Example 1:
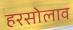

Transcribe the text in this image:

हरसोलाव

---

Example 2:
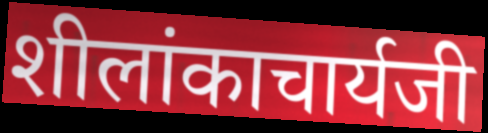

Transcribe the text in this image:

शीलांकाचार्यजी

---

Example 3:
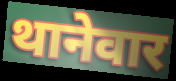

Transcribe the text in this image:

थानेवार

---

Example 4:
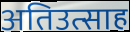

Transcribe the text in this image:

अतिउत्साह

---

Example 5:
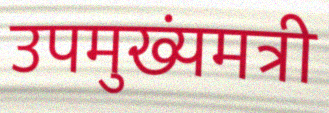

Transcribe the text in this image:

उपमुख्यंमत्री